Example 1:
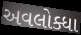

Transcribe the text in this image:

અવલોક્ધા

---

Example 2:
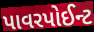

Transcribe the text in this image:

પાવરપોઈન્ટ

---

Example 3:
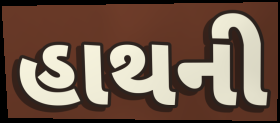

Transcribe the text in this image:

હાથની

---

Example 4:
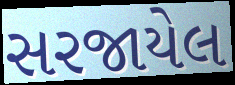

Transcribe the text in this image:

સરજાયેલ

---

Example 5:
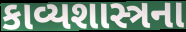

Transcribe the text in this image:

કાવ્યશાસ્ત્રના